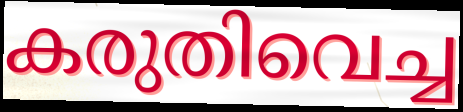
കരുതിവെച്ച